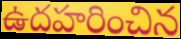
ఉదహరించిన